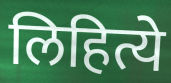
लिहित्ये